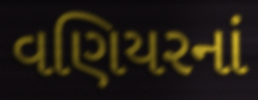
વણિયરનાં